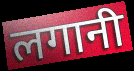
लगानी